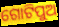
ଗୋଟିପୁଅ